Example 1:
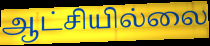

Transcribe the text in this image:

ஆட்சியில்லை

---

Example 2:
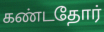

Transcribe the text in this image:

கண்டதோர்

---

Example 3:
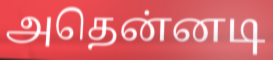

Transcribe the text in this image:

அதென்னடி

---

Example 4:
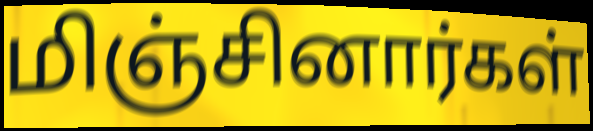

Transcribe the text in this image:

மிஞ்சினார்கள்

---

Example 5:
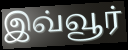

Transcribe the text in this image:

இவ்வூர்